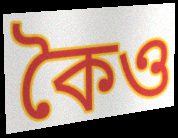
কৈও